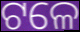
ଟଳେ